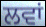
ਲਵਾਂ